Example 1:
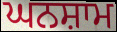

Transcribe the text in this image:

ਘਨਸ਼ਾਮ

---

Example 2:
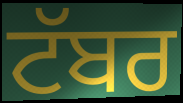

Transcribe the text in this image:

ਟੱਬਰ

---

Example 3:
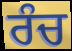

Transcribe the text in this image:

ਰੰਚ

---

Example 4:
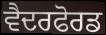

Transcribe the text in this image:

ਵੈਦਰਫੋਰਡ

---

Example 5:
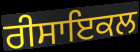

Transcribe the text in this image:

ਰੀਸਾਇਕਲ